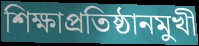
শিক্ষাপ্রতিষ্ঠানমুখী